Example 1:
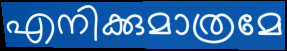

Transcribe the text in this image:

എനിക്കുമാത്രമേ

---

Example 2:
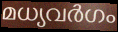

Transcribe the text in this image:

മധ്യവർഗം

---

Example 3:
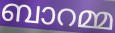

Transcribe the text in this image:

ബാറമ്മ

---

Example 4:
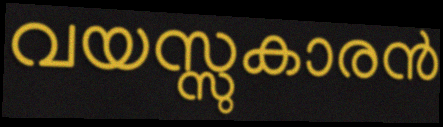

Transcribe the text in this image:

വയസ്സുകാരൻ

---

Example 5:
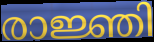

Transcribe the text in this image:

രാജ്ഞി